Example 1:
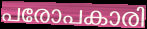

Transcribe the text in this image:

പരോപകാരി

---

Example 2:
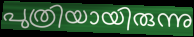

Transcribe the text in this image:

പുത്രിയായിരുന്നു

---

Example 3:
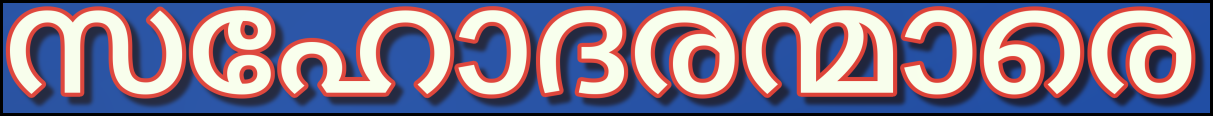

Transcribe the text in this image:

സഹോദരന്മാരെ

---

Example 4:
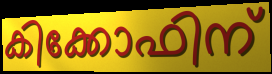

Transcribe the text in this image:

കിക്കോഫിന്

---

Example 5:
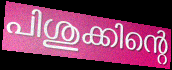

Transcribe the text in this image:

പിശുക്കിന്റെ